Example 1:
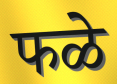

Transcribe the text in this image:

फळे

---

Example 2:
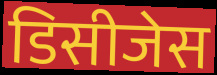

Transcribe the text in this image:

डिसीजेस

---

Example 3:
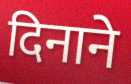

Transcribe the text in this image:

दिनाने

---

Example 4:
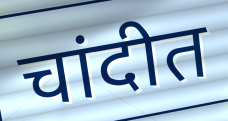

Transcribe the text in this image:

चांदीत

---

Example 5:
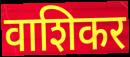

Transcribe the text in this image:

वाशिकर